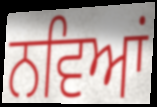
ਨਵਿਆਂ